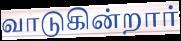
வாடுகின்றார்